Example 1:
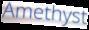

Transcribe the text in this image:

Amethyst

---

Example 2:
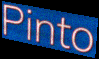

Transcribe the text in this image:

Pinto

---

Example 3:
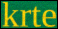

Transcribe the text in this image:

krte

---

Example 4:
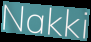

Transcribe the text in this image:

Nakki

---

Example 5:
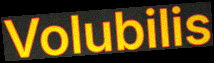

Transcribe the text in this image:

Volubilis